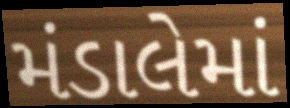
મંડાલેમાં